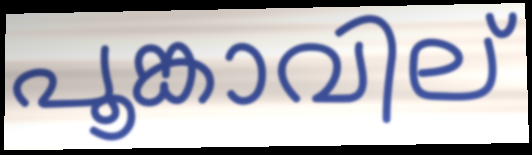
പൂങ്കാവില്